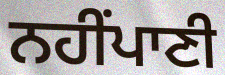
ਨਹੀਂਪਾਣੀ